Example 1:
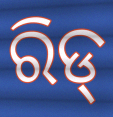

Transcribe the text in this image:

ରିଡ୍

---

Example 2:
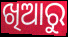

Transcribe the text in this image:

ଖିଆରୁ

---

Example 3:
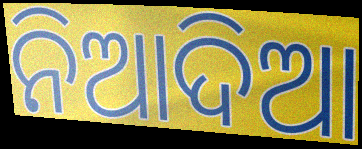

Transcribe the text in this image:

ନିଆଦିଆ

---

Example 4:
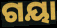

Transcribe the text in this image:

ଗୟା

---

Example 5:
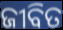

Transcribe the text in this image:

ଜୀବିତ